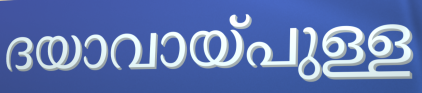
ദയാവായ്പുള്ള